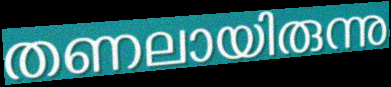
തണലായിരുന്നു